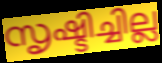
സൃഷ്ടിച്ചില്ല